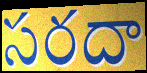
సరదా